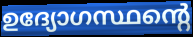
ഉദ്യോഗസ്ഥന്റെ